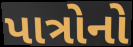
પાત્રોનો